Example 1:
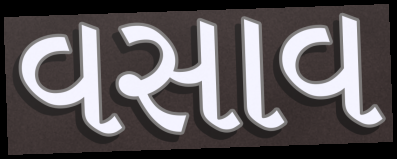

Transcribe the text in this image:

વસાવ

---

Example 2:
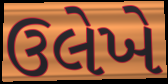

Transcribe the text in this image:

ઉલેખે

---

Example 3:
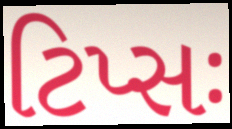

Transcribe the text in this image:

ટિપ્સઃ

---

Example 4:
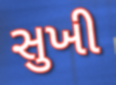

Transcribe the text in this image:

સુખી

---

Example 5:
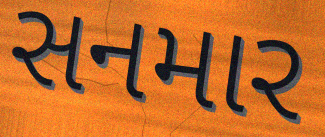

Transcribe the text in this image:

સનમાર